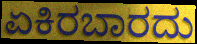
ಏಕಿರಬಾರದು